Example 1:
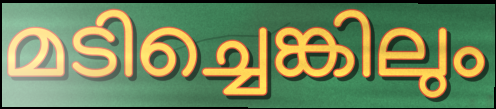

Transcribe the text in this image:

മടിച്ചെങ്കിലും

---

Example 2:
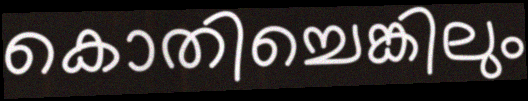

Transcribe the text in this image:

കൊതിച്ചെങ്കിലും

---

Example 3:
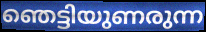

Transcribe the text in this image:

ഞെട്ടിയുണരുന്ന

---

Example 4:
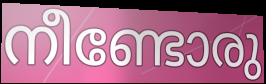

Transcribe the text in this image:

നീണ്ടോരു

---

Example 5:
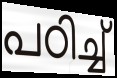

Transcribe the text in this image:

പഠിച്ച്